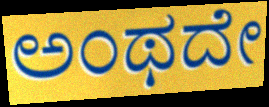
ಅಂಥದೇ